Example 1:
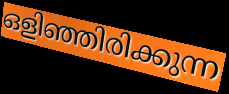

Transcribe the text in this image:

ഒളിഞ്ഞിരിക്കുന്ന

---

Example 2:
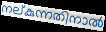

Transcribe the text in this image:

നല്കുന്നതിനാൽ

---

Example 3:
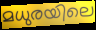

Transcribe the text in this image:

മധുരയിലെ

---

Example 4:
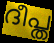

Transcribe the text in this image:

ദീപ്ത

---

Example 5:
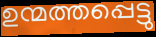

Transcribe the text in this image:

ഉന്മത്തപ്പെട്ടു